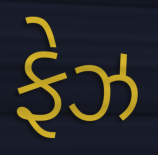
ફેઝ